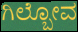
ಗಿಲ್ಬೋವ